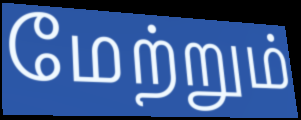
மேற்றும்